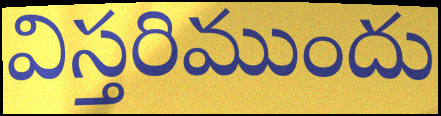
విస్తరిముందు